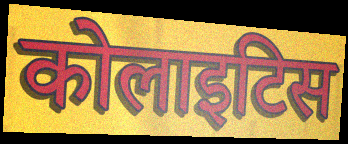
कोलाइटिस